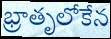
భ్రాతృలోకేన